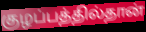
குழப்பத்தில்தான்